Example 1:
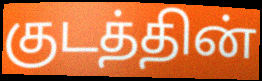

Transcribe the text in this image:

குடத்தின்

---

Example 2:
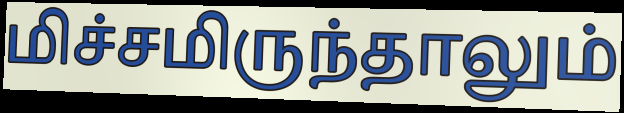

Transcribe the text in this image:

மிச்சமிருந்தாலும்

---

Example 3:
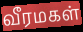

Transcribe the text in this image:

வீரமகள்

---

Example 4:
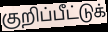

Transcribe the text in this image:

குறிப்பீட்டுக்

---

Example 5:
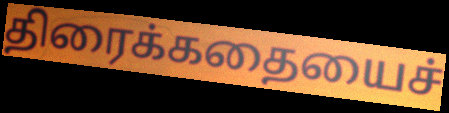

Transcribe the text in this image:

திரைக்கதையைச்